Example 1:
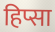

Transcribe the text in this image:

हिप्सा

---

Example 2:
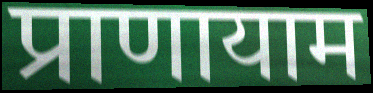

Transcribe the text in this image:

प्राणायाम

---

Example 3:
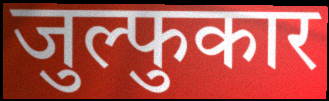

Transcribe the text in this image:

जुल्फुकार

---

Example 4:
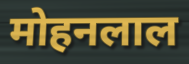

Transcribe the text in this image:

मोहनलाल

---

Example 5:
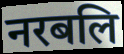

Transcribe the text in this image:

नरबलि